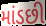
માંડછી